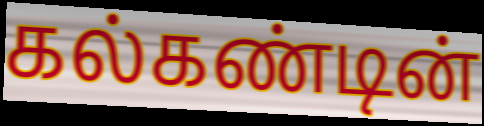
கல்கண்டின்